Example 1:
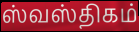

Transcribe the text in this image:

ஸ்வஸ்திகம்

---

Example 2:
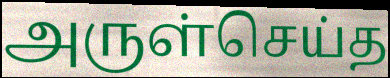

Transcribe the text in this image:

அருள்செய்த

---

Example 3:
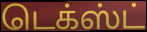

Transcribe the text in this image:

டெக்ஸ்ட்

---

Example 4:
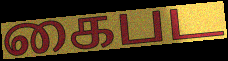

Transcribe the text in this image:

கைபட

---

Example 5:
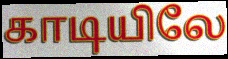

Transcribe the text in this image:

காடியிலே